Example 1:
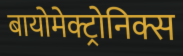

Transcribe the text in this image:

बायोमेक्ट्रोनिक्स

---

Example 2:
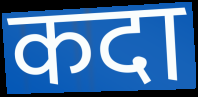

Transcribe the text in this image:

कदा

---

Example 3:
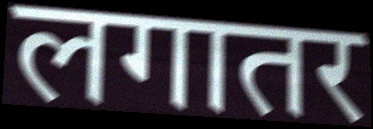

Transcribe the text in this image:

लगातर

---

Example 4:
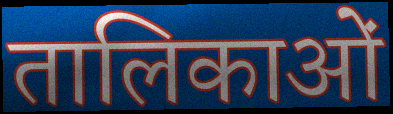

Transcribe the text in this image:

तालिकाओं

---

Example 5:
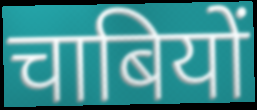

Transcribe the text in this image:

चाबियों